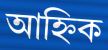
আহ্নিক